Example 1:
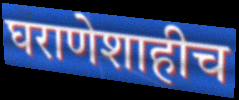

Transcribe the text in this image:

घराणेशाहीच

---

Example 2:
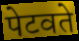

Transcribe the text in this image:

पेटवते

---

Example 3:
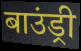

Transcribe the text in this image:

बाउंड्री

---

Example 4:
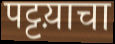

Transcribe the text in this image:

पट्टय़ाचा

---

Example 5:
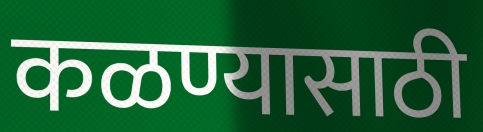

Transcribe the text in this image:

कळण्यासाठी